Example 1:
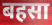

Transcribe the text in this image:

बहसा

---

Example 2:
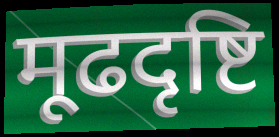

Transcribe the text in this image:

मूढदृष्टि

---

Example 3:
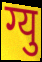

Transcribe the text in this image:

ग्यु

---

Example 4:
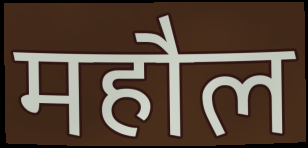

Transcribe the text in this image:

महौल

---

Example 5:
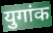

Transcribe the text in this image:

युगांक